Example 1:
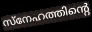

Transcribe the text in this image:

സ്നേഹത്തിന്റെ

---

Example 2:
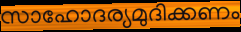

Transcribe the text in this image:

സാഹോദര്യമുദിക്കണം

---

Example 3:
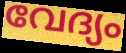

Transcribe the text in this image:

വേദ്യം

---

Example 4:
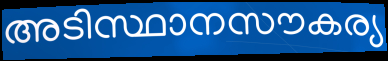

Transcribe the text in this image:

അടിസ്ഥാനസൗകര്യ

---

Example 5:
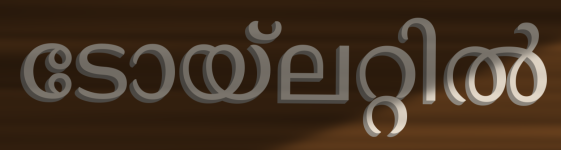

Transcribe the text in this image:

ടോയ്ലറ്റിൽ